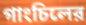
গাংচিলের